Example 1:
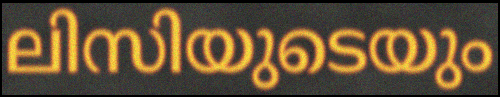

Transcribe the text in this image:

ലിസിയുടെയും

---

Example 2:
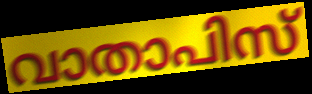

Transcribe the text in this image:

വാതാപിസ്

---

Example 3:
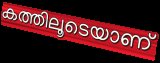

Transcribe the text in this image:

കത്തിലൂടെയാണ്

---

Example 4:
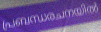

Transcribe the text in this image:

പ്രബന്ധരചനയിൽ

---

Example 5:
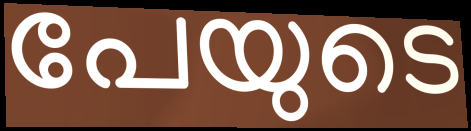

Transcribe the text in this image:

പേയുടെ